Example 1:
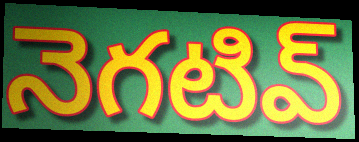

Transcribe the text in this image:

నెగటివ్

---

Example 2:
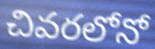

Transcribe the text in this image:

చివరలోనో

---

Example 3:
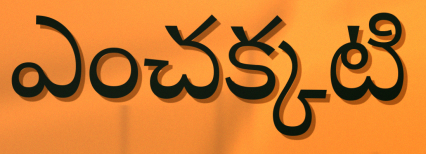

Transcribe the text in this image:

ఎంచక్కటి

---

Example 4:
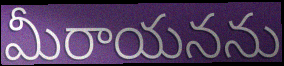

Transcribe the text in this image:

మీరాయనను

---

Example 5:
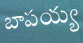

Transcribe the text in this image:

బాపయ్య